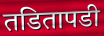
तडितापडी